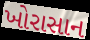
ખોરાસાન